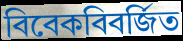
বিবেকবিবর্জিত